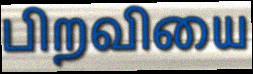
பிறவியை